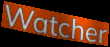
Watcher